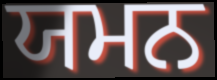
ਯਮਨ